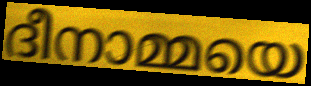
ദീനാമ്മയെ